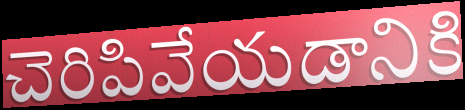
చెరిపివేయడానికి